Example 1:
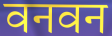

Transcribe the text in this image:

वनवन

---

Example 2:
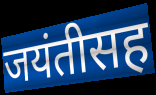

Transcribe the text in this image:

जयंतीसह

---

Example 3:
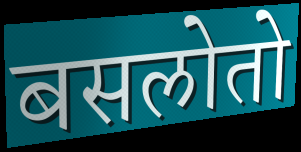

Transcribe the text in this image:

बसलोतो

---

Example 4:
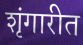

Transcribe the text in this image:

शृंगारीत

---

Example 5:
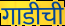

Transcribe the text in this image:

गाडीची